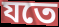
যতে